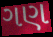
ગણ